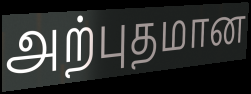
அற்புதமான